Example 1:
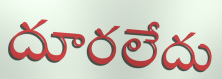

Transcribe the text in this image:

దూరలేదు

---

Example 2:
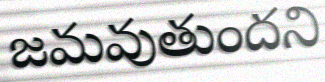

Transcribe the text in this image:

జమవుతుందని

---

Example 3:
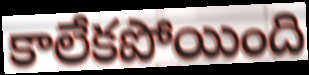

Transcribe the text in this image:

కాలేకపోయింది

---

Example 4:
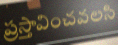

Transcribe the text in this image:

ప్రస్తావించవలసి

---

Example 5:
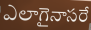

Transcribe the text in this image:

ఎలాగైనాసరే